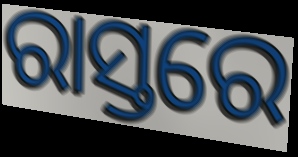
ରାସ୍ତରେ